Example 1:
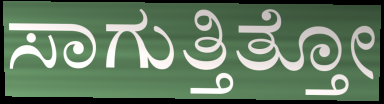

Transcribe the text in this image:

ಸಾಗುತ್ತಿತ್ತೋ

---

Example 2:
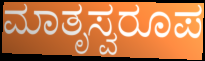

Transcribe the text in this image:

ಮಾತೃಸ್ವರೂಪ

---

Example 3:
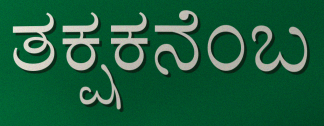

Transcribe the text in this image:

ತಕ್ಷಕನೆಂಬ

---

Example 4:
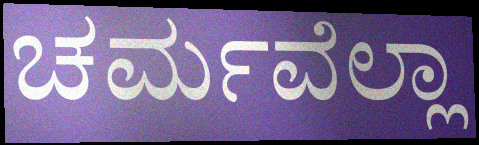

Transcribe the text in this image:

ಚರ್ಮವೆಲ್ಲಾ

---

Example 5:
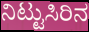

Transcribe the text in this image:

ನಿಟ್ಟುಸಿರಿನ